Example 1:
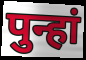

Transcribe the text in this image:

पुन्हां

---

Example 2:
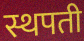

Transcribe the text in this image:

स्थपती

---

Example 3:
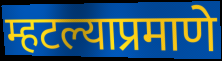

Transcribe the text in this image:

म्हटल्याप्रमाणे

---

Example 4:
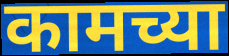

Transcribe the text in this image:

कामच्या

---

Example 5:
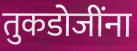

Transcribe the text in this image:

तुकडोजींना